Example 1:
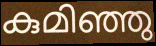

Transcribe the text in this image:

കുമിഞ്ഞു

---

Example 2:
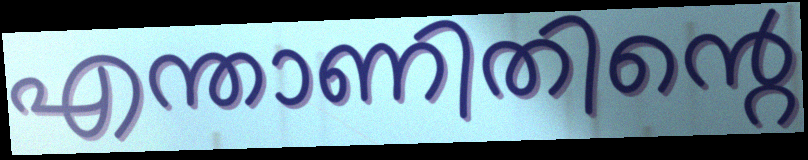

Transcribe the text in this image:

എന്താണിതിന്റെ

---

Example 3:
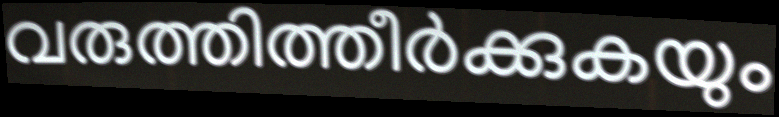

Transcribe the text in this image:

വരുത്തിത്തീർക്കുകയും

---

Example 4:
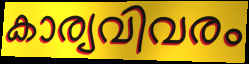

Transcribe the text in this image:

കാര്യവിവരം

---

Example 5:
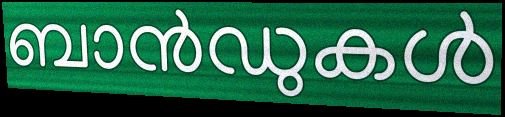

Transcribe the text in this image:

ബാൻഡുകൾ